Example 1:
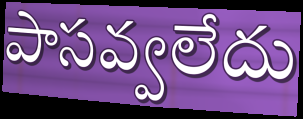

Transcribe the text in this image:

పాసవ్వలేదు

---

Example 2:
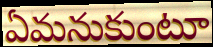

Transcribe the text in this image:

ఏమనుకుంటూ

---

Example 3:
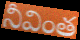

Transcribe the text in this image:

నీవింత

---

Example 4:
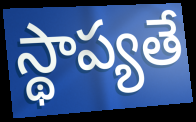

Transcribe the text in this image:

స్థాప్యతే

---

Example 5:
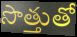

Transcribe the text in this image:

సొత్తుతో